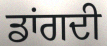
ਡਾਂਗਦੀ